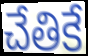
చేతికే